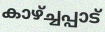
കാഴ്ച്ചപ്പാട്